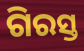
ଗିରସ୍ତ